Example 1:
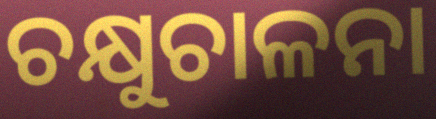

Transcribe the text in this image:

ଚକ୍ଷୁଚାଳନା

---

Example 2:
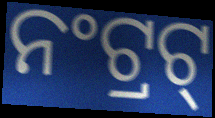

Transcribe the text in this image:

ନଂଟ୍ରଟ୍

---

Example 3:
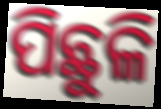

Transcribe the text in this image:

ପିଛୁଳି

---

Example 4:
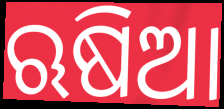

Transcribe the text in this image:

ଋଷିଆ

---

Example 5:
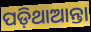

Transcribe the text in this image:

ପଡ଼ିଥାଆନ୍ତା